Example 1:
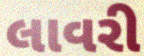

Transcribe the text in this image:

લાવરી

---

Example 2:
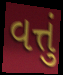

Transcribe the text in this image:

વત્તું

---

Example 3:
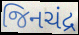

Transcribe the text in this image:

જિનચંદ્ર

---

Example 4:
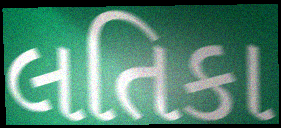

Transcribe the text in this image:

લતિકા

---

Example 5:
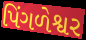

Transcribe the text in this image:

પિંગળેશ્વર